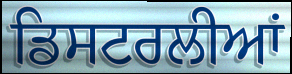
ਡਿਸਟਰਲੀਆਂ